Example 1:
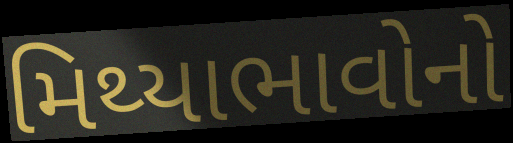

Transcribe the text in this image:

મિથ્યાભાવોનો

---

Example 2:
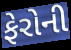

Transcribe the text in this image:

ફેરોની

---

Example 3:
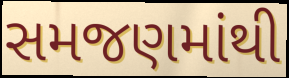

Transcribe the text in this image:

સમજણમાંથી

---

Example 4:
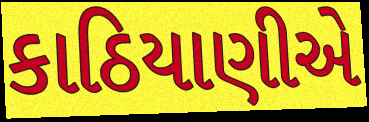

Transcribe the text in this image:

કાઠિયાણીએ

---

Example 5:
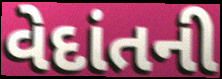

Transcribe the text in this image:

વેદાંતની